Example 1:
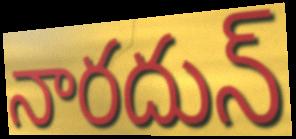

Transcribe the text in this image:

నారదున్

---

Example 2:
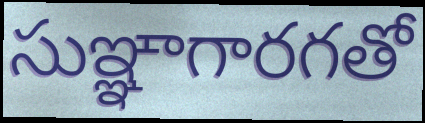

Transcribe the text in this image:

సుఞ్ఞాగారగతో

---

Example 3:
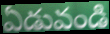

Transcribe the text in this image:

ఏడువండి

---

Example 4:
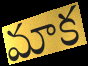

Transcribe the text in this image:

మాక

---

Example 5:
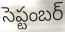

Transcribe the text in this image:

సెప్టంబర్